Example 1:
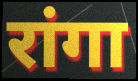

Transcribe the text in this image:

रांगा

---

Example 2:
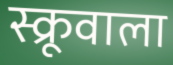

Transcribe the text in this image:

स्क्रूवाला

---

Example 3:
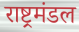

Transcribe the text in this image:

राष्ट्रमंडल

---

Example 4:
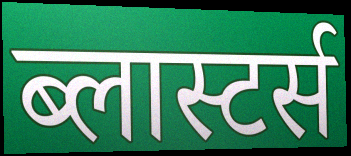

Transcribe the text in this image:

ब्लास्टर्स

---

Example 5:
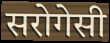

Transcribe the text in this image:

सरोगेसी